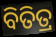
ବିତିତ୍ର